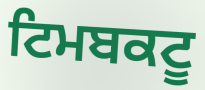
ਟਿਮਬਕਟੂ